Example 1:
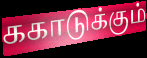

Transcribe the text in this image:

ககாடுக்கும்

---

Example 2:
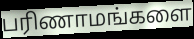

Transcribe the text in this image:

பரிணாமங்களை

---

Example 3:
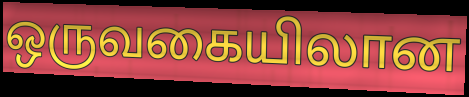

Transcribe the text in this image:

ஒருவகையிலான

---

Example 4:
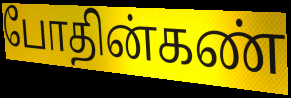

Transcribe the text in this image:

போதின்கண்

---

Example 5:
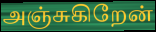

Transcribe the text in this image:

அஞ்சுகிறேன்